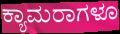
ಕ್ಯಾಮರಾಗಳೂ